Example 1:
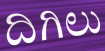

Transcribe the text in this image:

ದಿಗಿಲು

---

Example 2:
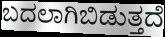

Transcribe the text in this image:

ಬದಲಾಗಿಬಿಡುತ್ತದೆ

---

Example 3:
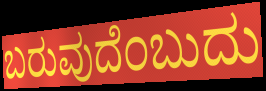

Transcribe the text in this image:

ಬರುವುದೆಂಬುದು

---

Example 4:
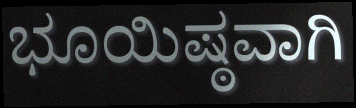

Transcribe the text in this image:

ಭೂಯಿಷ್ಠವಾಗಿ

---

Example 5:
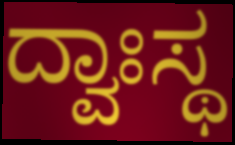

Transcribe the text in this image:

ದ್ವಾಃಸ್ಥ